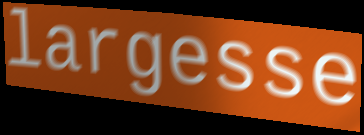
largesse